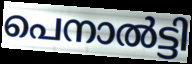
പെനാൽട്ടി